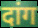
दांग